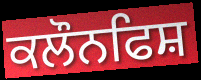
ਕਲੌਨਫਿਸ਼